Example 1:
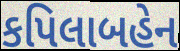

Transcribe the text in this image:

કપિલાબહેન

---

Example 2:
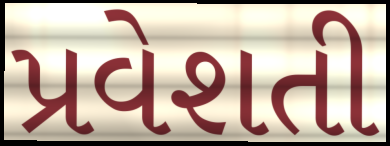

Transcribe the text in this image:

પ્રવેશતી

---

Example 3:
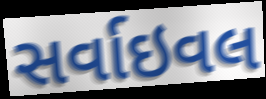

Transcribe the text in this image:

સર્વાઇવલ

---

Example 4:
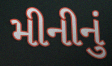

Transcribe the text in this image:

મીનીનું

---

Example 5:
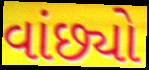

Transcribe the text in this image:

વાંછ્યો